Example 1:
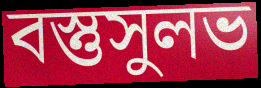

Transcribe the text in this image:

বস্তুসুলভ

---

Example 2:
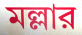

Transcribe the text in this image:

মল্লার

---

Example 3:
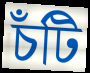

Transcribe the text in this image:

চঁটি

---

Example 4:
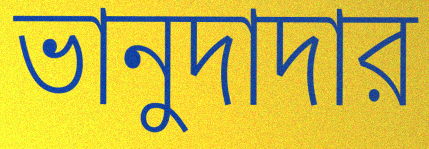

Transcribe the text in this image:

ভানুদাদার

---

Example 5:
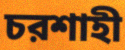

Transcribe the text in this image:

চরশাহী